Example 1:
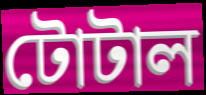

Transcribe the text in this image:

টোটাল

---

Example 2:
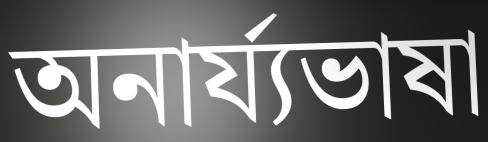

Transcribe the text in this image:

অনার্য্যভাষা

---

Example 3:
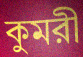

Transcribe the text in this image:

কুমরী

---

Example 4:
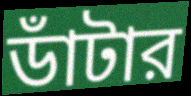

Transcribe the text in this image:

ডাঁটার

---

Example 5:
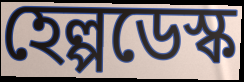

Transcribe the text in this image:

হেল্পডেস্ক